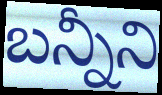
బన్నీని